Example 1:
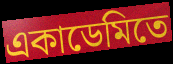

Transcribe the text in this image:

একাডেমিতে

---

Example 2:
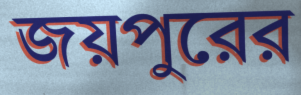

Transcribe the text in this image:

জয়পুরের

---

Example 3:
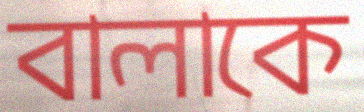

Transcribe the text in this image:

বালাকে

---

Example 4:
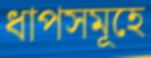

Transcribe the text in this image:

ধাপসমূহে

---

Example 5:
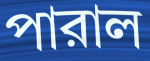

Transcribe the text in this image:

পারাল